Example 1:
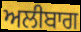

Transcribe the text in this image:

ਅਲੀਬਾਗ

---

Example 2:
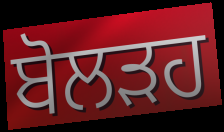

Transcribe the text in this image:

ਬੋਲੜਹ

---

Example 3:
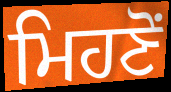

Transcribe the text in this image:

ਮਿਹਣੋਂ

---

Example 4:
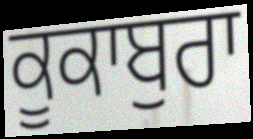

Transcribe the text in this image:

ਕੂਕਾਬੁਰਾ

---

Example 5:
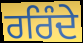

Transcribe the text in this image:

ਰਰਿੰਦੇ